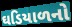
ઘડિયાળનો